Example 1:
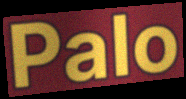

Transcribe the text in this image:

Palo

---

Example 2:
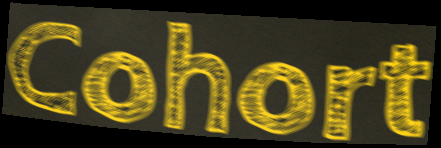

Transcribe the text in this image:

Cohort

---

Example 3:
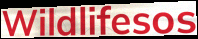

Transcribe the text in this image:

Wildlifesos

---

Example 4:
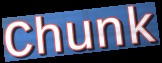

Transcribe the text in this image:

Chunk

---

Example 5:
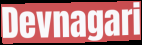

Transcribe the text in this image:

Devnagari